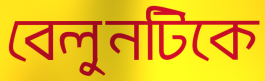
বেলুনটিকে